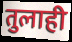
तुलाही